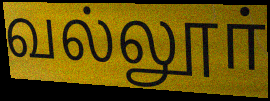
வல்லூர்